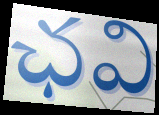
ఛవి